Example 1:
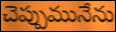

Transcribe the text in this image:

చెప్పుమునేను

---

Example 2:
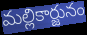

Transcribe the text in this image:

మల్లికార్జునం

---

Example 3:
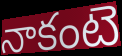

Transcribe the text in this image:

నాకంటె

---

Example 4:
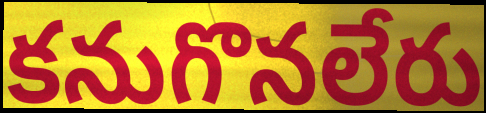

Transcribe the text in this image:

కనుగొనలేరు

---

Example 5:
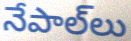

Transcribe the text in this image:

నేపాల్‌లు